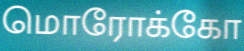
மொரோக்கோ